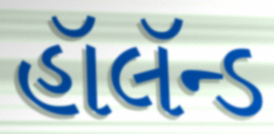
હૉલૅન્ડ